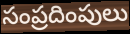
సంప్రదింపులు